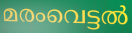
മരംവെട്ടൽ